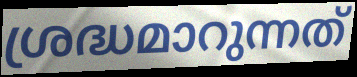
ശ്രദ്ധമാറുന്നത്